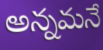
అన్నమనే